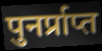
पुनर्प्राप्त